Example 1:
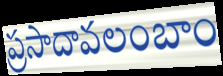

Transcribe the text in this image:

ప్రసాదావలంబాం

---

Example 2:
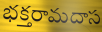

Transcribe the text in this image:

భక్తరామదాస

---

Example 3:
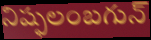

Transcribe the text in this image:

నిష్ఫలంబగున్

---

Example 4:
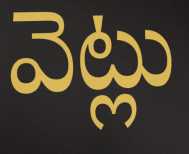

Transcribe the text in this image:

వెట్లు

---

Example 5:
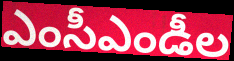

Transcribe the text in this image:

ఎంసీఎండీల